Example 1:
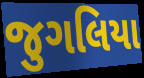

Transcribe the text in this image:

જુગલિયા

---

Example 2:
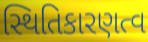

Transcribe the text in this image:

સ્થિતિકારણત્વ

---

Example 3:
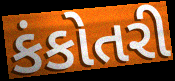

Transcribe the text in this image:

કંકોતરી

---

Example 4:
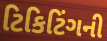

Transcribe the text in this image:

ટિકિટિંગની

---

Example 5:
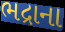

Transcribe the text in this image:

ભદ્રાના